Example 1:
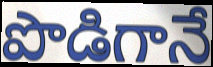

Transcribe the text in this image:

పొడిగానే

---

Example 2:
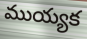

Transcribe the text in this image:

ముయ్యక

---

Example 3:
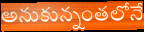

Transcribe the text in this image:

అనుకున్నంతలోనే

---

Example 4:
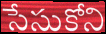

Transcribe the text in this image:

సేసుకోని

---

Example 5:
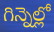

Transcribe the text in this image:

గిన్నెల్లో